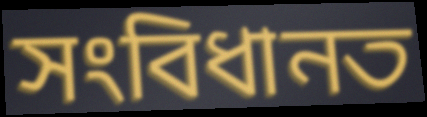
সংবিধানত